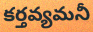
కర్తవ్యమనీ